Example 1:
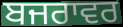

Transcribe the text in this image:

ਬਜਰਾਵਰ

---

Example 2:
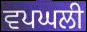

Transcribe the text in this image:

ਵਪਘਲੀ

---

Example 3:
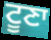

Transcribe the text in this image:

ਟੂਣਾ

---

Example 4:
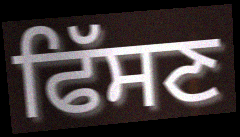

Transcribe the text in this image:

ਫਿੱਸਣ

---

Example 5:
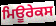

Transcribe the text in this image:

ਮਿਊਰੇਕਸ